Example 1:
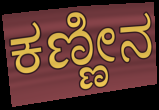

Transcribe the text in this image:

ಕಣ್ಣೀನ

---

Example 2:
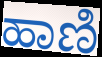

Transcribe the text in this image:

ಹಾಣಿ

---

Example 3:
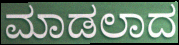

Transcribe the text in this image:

ಮಾಡಲಾದ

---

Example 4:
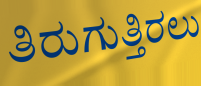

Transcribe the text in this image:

ತಿರುಗುತ್ತಿರಲು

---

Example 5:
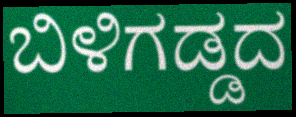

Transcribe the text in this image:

ಬಿಳಿಗಡ್ಡದ